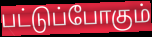
பட்டுப்போகும்